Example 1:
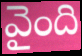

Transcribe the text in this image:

వైంది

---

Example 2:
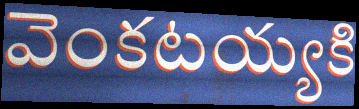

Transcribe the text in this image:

వెంకటయ్యకి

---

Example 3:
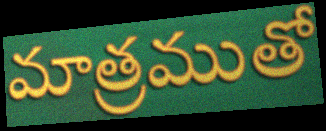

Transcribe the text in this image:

మాత్రముతో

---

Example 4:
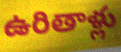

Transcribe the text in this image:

ఉరితాళ్లు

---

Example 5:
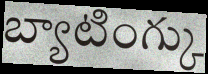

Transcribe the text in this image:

బ్యాటింగ్కు